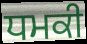
ਧਮਕੀ